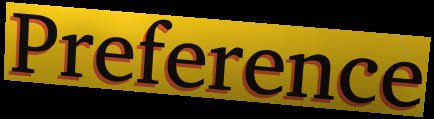
Preference